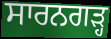
ਸਾਰਨਗੜ੍ਹ